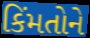
કિંમતોને